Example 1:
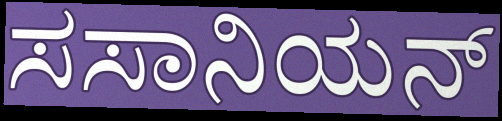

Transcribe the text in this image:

ಸಸಾನಿಯನ್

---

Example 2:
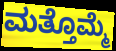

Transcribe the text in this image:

ಮತ್ತೊಮ್ಮೆ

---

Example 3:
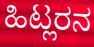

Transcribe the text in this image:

ಹಿಟ್ಲರನ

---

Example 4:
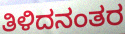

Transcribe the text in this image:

ತಿಳಿದನಂತರ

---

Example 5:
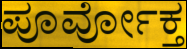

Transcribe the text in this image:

ಪೂರ್ವೋಕ್ತ